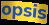
opsis